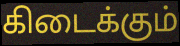
கிடைக்கும்